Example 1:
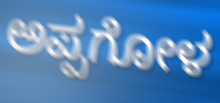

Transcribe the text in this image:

ಅಪ್ಪಗೋಳ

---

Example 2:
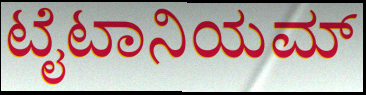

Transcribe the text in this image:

ಟೈಟಾನಿಯಮ್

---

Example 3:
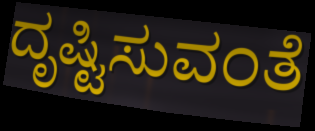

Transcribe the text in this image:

ದೃಷ್ಟಿಸುವಂತೆ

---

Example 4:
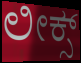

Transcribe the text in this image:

ಲೀಕ್ಸ್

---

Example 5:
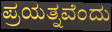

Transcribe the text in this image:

ಪ್ರಯತ್ನವೆಂದು